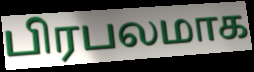
பிரபலமாக